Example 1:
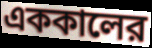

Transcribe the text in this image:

এককালের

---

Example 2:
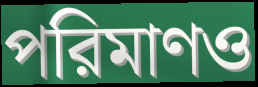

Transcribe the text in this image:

পরিমাণও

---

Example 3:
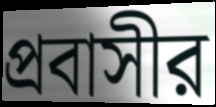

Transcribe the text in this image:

প্রবাসীর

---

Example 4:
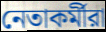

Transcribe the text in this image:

নেতাকর্মীরা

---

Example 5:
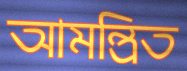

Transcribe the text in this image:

আমন্ত্রিত